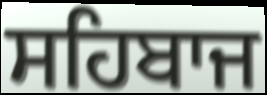
ਸਹਿਬਾਜ